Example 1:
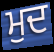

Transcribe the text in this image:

ਮੁਦ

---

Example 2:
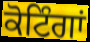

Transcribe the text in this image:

ਕੋਟਿੰਗਾਂ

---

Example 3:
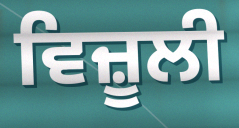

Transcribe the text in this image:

ਵਿਜ਼ੂਲੀ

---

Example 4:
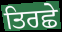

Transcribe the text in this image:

ਤਿਰਛੇ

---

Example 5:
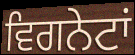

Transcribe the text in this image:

ਵਿਗਨੇਟਾਂ